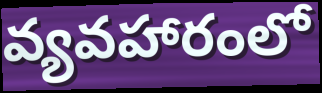
వ్యవహారంలో